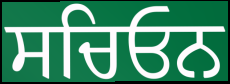
ਸਚਿਓਨ